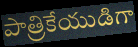
పాత్రికేయుడిగా